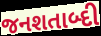
જનશતાબ્દી